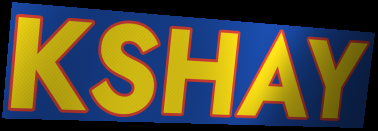
KSHAY